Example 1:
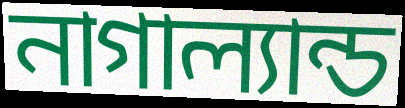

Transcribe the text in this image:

নাগাল্যান্ড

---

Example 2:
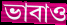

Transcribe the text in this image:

ভাবাও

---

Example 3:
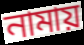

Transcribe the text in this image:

নামায়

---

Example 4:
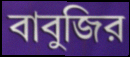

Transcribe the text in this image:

বাবুজির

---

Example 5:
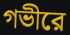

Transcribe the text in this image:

গভীরে